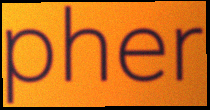
pher